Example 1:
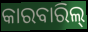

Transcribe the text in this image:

କାରବାରିଲ୍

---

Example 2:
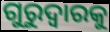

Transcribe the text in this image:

ଗୁରୁଦ୍ୱାରକୁ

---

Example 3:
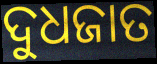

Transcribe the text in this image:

ଦୁଧଜାତ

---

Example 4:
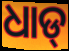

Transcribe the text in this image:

ଧାଡ୍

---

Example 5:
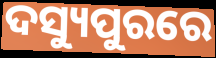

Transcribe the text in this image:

ଦସ୍ୟୁପୁରରେ